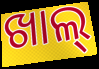
ଖାଲ୍